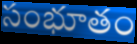
సంభూతం